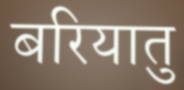
बरियातु